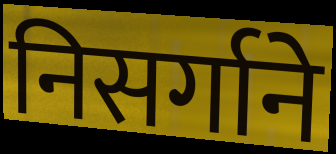
निसर्गाने